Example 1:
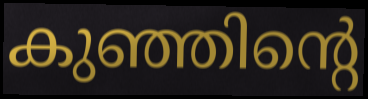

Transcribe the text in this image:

കുഞ്ഞിന്റെ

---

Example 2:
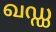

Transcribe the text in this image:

ഖഡ്ഡ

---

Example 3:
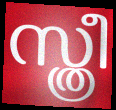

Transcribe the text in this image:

സ്ത്രീ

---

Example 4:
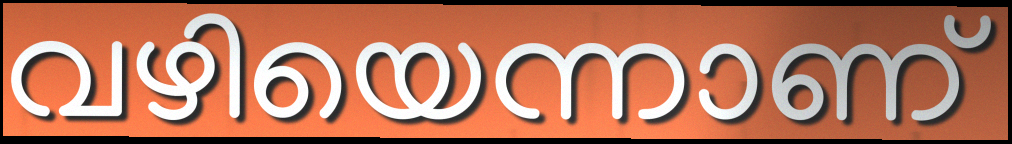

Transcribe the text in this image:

വഴിയെന്നാണ്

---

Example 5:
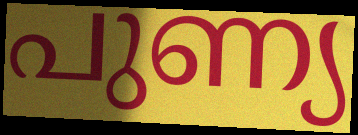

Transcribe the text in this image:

പുണ്യ